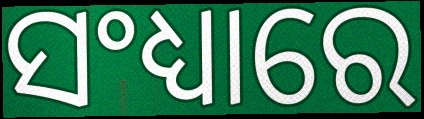
ସଂଧ୍ଯାରେ